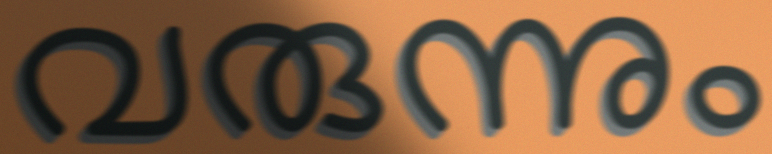
വരുന്നും